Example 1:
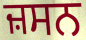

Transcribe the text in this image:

ਜ਼ਸਨ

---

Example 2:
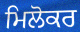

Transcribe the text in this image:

ਮਿਲੋਕਰ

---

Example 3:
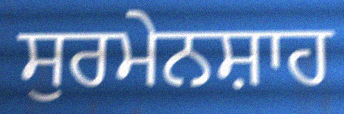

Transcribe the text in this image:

ਸੁਰਮੇਨਸ਼ਾਹ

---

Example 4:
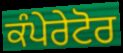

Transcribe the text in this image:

ਕੰਪੇਰੇਟੋਰ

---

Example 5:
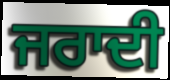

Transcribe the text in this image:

ਜਰਾਦੀ